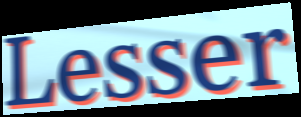
Lesser